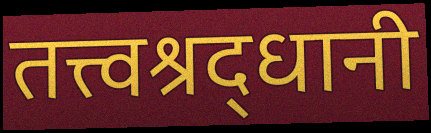
तत्त्वश्रद्धानी